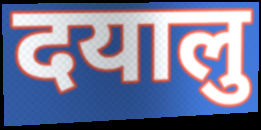
दयालु